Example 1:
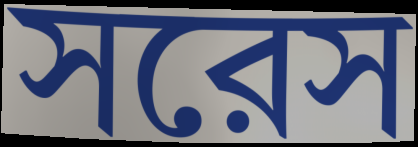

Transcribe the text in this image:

সরেস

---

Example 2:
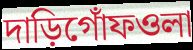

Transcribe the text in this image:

দাড়িগোঁফওলা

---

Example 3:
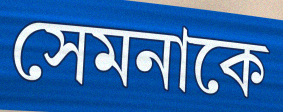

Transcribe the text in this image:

সেমনাকে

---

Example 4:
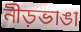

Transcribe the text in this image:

নীড়ভাঙা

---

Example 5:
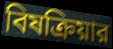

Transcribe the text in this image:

বিষক্রিয়ার